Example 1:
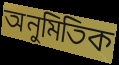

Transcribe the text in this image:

অনুমিতিক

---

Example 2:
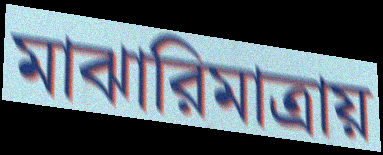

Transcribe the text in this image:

মাঝারিমাত্রায়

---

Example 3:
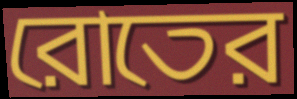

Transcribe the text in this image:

রোতের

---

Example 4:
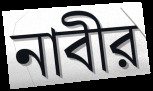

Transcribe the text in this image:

নাবীর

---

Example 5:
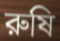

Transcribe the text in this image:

রুষি